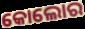
କୋଲୋର